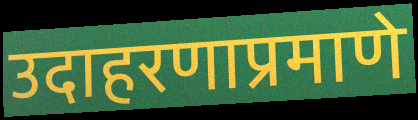
उदाहरणाप्रमाणे